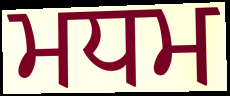
ਮਧਮ